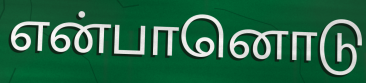
என்பானொடு